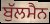
ਬੁੱਲਮੈਨ